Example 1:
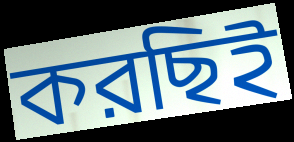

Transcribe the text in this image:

করছিই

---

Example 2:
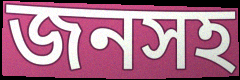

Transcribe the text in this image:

জনসহ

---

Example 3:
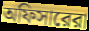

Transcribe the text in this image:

অফিসারেরা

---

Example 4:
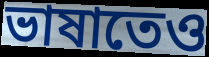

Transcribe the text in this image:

ভাষাতেও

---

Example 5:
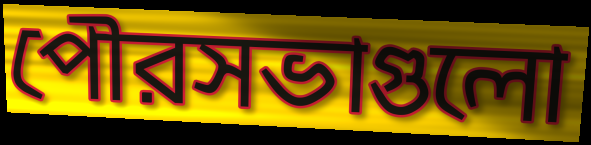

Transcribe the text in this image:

পৌরসভাগুলো